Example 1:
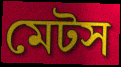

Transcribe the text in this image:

মেটস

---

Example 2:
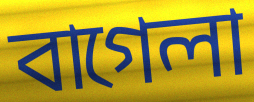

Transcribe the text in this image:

বাগেলা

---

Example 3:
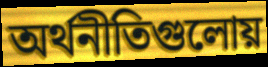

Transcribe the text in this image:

অর্থনীতিগুলোয়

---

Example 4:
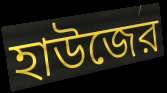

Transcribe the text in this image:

হাউজের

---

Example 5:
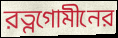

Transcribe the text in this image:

রত্নগোমীনের